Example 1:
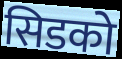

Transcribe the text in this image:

सिडको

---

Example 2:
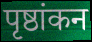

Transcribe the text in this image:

पृष्ठांकन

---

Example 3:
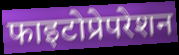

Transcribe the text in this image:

फाइटोप्रेपरेशन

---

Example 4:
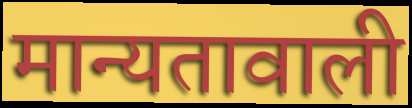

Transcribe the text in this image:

मान्यतावाली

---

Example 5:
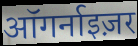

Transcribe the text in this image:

ऑगर्नाइज़र